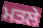
ਮਤਲੇ